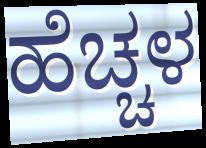
ಹೆಚ್ಚಳ